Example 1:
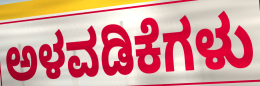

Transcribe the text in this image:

ಅಳವಡಿಕೆಗಳು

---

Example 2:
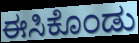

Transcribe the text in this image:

ಈಸಿಕೊಂಡು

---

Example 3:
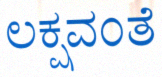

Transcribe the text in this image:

ಲಕ್ಷವಂತೆ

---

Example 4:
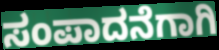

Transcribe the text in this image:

ಸಂಪಾದನೆಗಾಗಿ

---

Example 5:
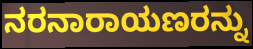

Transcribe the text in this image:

ನರನಾರಾಯಣರನ್ನು